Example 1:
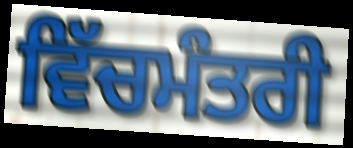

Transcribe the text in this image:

ਵਿੱਚਮੰਤਰੀ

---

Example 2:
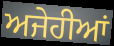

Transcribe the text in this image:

ਅਜੇਹੀਆਂ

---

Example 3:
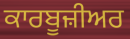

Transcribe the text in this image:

ਕਾਰਬੂਜ਼ੀਅਰ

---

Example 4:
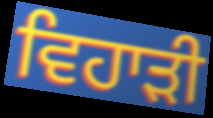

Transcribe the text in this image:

ਵਿਹਾੜੀ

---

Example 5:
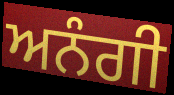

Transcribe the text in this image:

ਅਨੰਗੀ